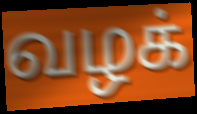
வழக்